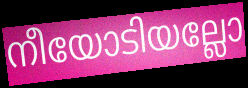
നീയോടിയല്ലോ